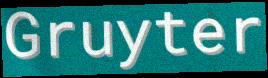
Gruyter